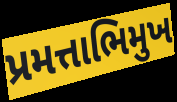
પ્રમત્તાભિમુખ